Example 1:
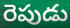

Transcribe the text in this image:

రెపుడు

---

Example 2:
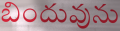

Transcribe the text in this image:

బిందువును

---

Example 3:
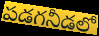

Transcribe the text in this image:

పడగనీడలో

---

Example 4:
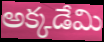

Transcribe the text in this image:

అక్కడేమి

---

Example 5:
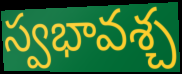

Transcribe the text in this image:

స్వభావశ్చ